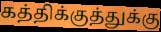
கத்திக்குத்துக்கு